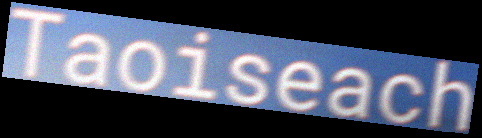
Taoiseach